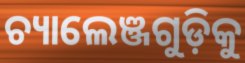
ଚ୍ୟାଲେଞ୍ଜଗୁଡ଼ିକୁ